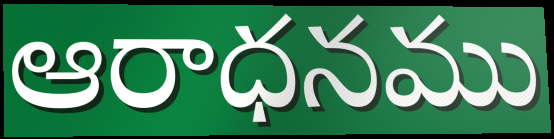
ఆరాధనము